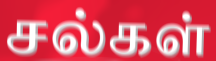
சல்கள்